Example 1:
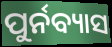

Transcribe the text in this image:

ପୁର୍ନବ୍ୟାସ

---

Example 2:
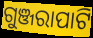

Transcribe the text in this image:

ଗୁଞ୍ଜରାପାଟି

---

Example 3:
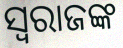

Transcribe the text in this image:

ସ୍ୱରାଜଙ୍କ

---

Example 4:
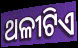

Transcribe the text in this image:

ଥଳୀଟିଏ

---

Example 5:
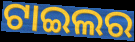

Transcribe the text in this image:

ଟାଇଲର